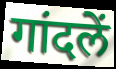
गांदलें